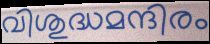
വിശുദ്ധമന്ദിരം